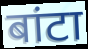
बांटा